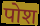
पोश